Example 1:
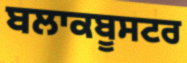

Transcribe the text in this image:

ਬਲਾਕਬੂਸਟਰ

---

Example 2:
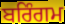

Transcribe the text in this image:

ਬਰਿੰਗਮ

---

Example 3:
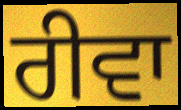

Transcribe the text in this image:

ਰੀਵਾ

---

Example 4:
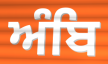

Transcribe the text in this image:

ਅੰਬਿ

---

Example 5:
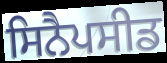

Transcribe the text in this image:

ਸਿਨੈਪਸੀਡ